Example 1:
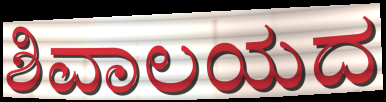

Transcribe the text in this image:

ಶಿವಾಲಯದ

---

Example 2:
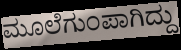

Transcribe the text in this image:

ಮೂಲೆಗುಂಪಾಗಿದ್ದು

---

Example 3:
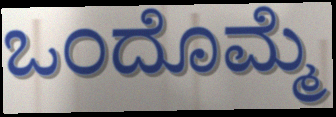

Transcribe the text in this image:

ಒಂದೊಮ್ಮೆ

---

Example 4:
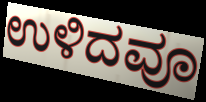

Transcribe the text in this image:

ಉಳಿದವೂ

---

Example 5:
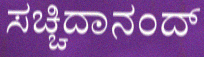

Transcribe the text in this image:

ಸಚ್ಚಿದಾನಂದ್